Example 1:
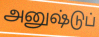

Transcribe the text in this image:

அனுஷ்டுப்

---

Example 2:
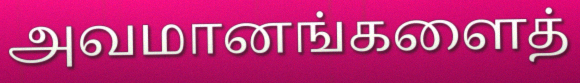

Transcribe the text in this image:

அவமானங்களைத்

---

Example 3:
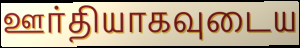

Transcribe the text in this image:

ஊர்தியாகவுடைய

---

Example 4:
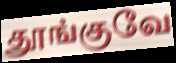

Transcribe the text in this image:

தூங்குவே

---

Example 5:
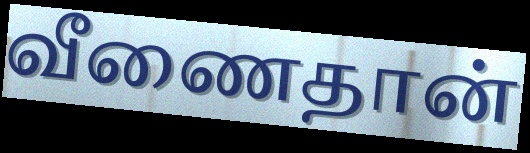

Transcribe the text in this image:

வீணைதான்